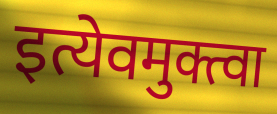
इत्येवमुक्त्वा